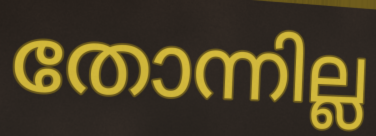
തോന്നില്ല